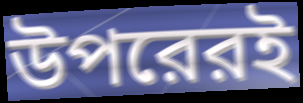
উপরেরই